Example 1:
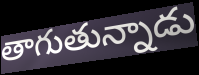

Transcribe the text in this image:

తాగుతున్నాడు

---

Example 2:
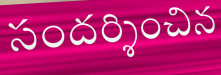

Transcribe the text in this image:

సందర్శించిన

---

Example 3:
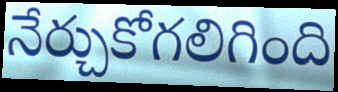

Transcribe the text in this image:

నేర్చుకోగలిగింది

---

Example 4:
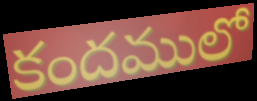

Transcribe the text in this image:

కందములో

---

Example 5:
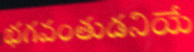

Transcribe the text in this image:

భగవంతుడనియే